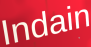
Indain